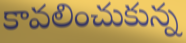
కావలించుకున్న